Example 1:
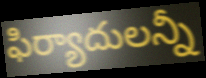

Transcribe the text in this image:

ఫిర్యాదులన్నీ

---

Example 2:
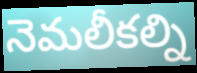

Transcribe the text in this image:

నెమలీకల్ని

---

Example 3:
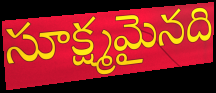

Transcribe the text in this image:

సూక్ష్మమైనది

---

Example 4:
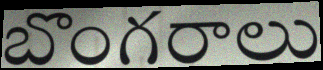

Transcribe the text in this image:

బొంగరాలు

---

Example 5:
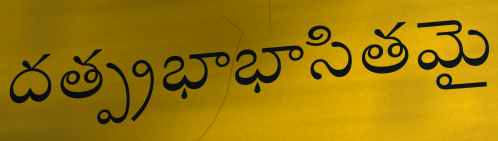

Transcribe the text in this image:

దత్ప్రభాభాసితమై